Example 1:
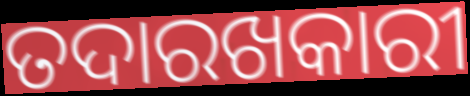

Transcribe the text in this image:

ତଦାରଖକାରୀ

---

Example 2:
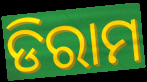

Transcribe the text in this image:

ଡିରାମ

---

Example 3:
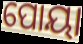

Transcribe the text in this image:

ପୋୟା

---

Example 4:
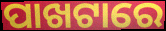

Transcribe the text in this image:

ପାଖଟାରେ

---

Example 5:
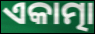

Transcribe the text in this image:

ଏକାତ୍ମା